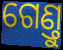
ଗେଣ୍ତୁ